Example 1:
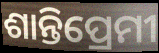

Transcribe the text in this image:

ଶାନ୍ତିପ୍ରେମୀ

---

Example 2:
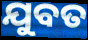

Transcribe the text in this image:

ଯୁବତ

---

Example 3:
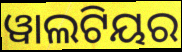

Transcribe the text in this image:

ୱାଲଟିୟର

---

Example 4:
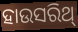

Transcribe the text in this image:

ହାଉସରିଥ୍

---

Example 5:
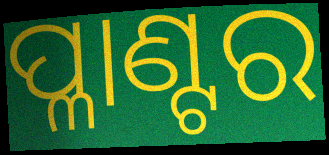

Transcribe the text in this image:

ପ୍ଳାଣ୍ଟର